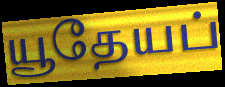
யூதேயப்